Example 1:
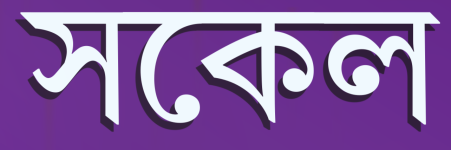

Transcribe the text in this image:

সকেল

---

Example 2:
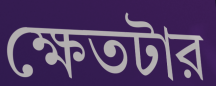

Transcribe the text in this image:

ক্ষেতটার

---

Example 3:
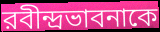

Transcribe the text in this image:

রবীন্দ্রভাবনাকে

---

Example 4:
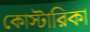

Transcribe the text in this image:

কোস্টারিকা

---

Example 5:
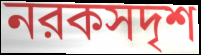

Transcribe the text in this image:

নরকসদৃশ